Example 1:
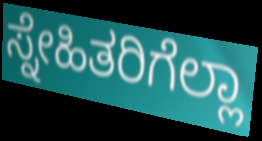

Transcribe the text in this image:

ಸ್ನೇಹಿತರಿಗೆಲ್ಲಾ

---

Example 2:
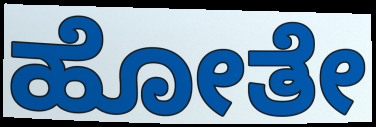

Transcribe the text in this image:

ಹೋತೇ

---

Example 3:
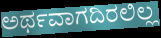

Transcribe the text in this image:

ಅರ್ಥವಾಗದಿರಲಿಲ್ಲ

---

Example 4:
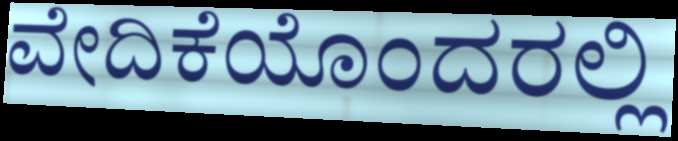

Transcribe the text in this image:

ವೇದಿಕೆಯೊಂದರಲ್ಲಿ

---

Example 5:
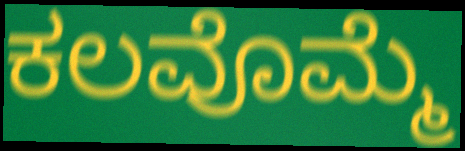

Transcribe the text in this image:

ಕಲವೊಮ್ಮೆ